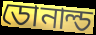
ডোনাল্ড